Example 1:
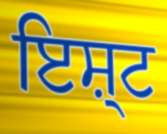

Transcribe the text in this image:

ਇਸ਼੍ਟ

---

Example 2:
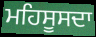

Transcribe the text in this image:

ਮਹਿਸੂਸਦਾ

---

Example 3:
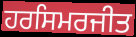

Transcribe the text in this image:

ਹਰਸਿਮਰਜੀਤ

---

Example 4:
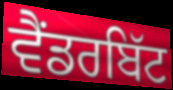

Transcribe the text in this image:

ਵੈਂਡਰਬਿੱਟ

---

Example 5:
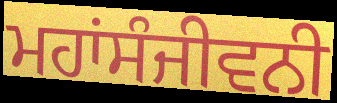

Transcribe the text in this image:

ਮਹਾਂਸੰਜੀਵਨੀ